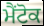
ਮੈਂਟੋਕ